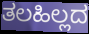
ತಲಹಿಲ್ಲದ